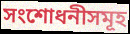
সংশোধনীসমূহ